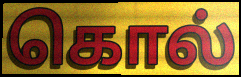
கொல்